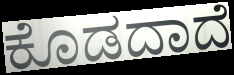
ಕೊಡದಾದೆ